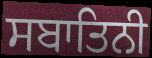
ਸਬਾਤਿਨੀ